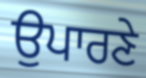
ਉਪਾਰਣੇ